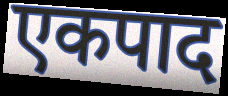
एकपाद